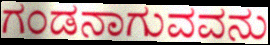
ಗಂಡನಾಗುವವನು